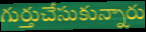
గుర్తుచేసుకున్నారు